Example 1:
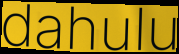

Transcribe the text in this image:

dahulu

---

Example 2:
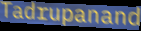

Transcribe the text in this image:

Tadrupanand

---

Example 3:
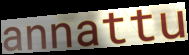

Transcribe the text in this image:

annattu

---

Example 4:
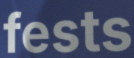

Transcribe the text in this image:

fests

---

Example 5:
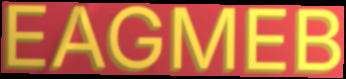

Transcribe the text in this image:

EAGMEB